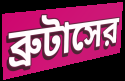
ব্রুটাসের